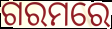
ଗରମରେ